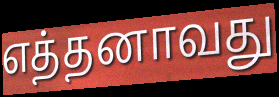
எத்தனாவது